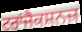
ਟਰਾਂਜੈਕਸ਼ਨਜ਼